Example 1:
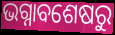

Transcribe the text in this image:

ଭଗ୍ନାବଶେଷରୁ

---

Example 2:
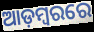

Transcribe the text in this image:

ଆଡ଼ମ୍ୱରରେ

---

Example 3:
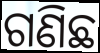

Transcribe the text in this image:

ଗଣିଛ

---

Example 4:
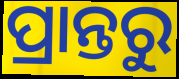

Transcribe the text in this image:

ପ୍ରାନ୍ତରୁ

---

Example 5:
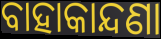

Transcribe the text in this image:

ବାହାକାନ୍ଦଣା